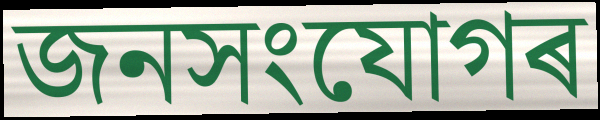
জনসংযোগৰ